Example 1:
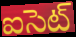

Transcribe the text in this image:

ఐసెట్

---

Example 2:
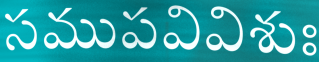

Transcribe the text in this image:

సముపవివిశుః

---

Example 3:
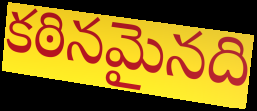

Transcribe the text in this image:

కఠినమైనది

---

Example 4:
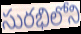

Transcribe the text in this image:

సురభిలోని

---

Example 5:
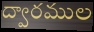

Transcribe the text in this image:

ద్వారముల